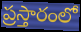
ప్రస్తారంలో